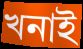
খনাই